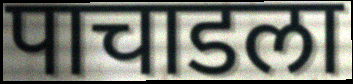
पाचाडला